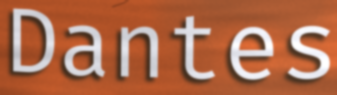
Dantes